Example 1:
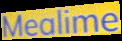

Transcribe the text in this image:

Mealime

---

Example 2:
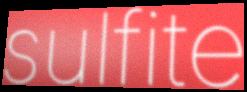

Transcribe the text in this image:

sulfite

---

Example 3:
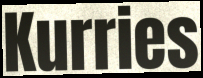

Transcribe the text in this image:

Kurries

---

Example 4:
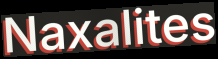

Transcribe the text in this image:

Naxalites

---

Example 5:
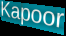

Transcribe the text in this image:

Kapoor